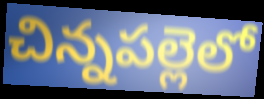
చిన్నపల్లెలో